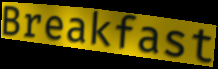
Breakfast